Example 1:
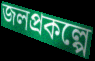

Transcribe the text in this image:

জলপ্রকল্পে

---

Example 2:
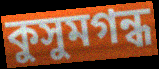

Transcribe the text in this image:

কুসুমগন্ধ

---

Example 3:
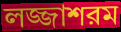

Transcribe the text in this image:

লজ্জাশরম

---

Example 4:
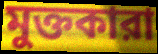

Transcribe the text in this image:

মুক্তকারা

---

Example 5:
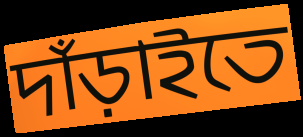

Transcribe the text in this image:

দাঁড়াইতে